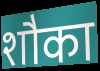
शौका